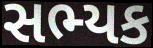
સભ્યક